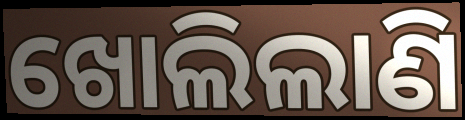
ଖୋଲିଲାଣି